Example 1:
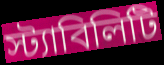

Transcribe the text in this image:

স্ট্যাবিলিটি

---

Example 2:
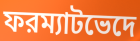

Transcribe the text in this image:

ফরম্যাটভেদে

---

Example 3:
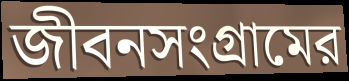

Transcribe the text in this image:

জীবনসংগ্রামের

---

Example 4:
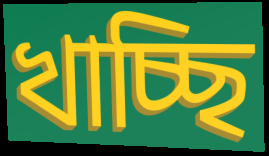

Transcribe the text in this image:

খাচ্ছি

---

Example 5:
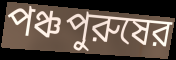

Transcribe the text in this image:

পঞ্চপুরুষের